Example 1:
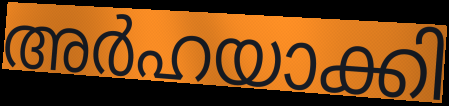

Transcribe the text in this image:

അർഹയാക്കി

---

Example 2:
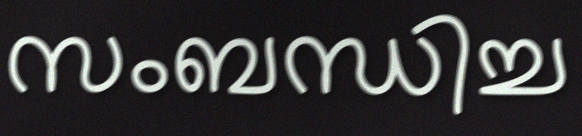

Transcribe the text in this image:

സംബന്ധിച്ച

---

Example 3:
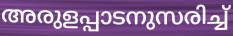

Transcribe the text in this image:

അരുളപ്പാടനുസരിച്ച്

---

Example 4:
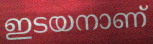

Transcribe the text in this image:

ഇടയനാണ്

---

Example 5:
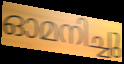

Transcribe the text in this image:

ഓമനിച്ചു